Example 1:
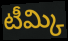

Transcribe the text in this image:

టీమ్కి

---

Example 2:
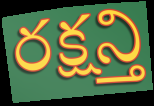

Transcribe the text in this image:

రక్షన్తి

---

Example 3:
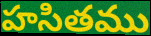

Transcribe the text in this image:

హసితము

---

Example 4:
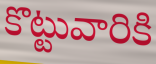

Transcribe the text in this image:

కొట్టువారికి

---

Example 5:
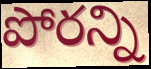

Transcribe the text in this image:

పోరన్ని